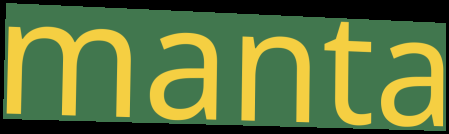
manta